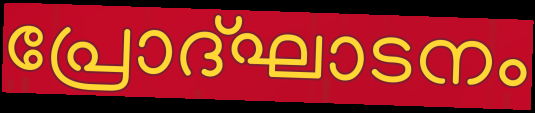
പ്രോദ്ഘാടനം